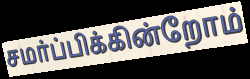
சமர்ப்பிக்கின்றோம்